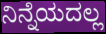
ನಿನ್ನೆಯದಲ್ಲ